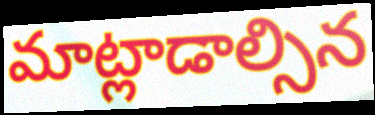
మాట్లాడాల్సిన